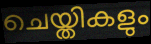
ചെയ്തികളും